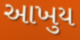
આખુય